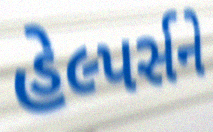
હેલ્પર્સને